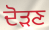
ਦੋੜਣ